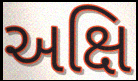
અક્ષિ